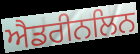
ਐਡਰੀਨਲਿਨ